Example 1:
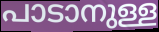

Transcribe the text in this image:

പാടാനുള്ള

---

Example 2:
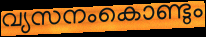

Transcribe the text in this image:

വ്യസനംകൊണ്ടും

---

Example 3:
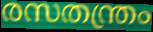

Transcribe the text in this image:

രസതന്ത്രം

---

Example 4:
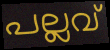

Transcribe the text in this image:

പല്ലവ്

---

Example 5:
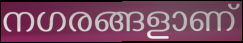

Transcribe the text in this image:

നഗരങ്ങളാണ്